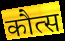
कौत्स